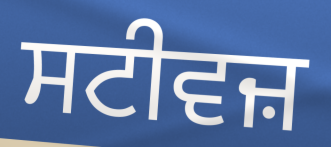
ਸਟੀਵਜ਼